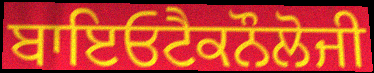
ਬਾਇਓਟੈਕਨੌਲੋਜੀ